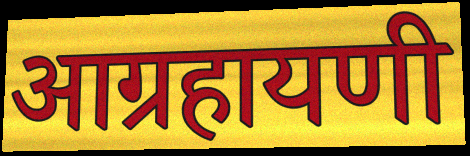
आग्रहायणी